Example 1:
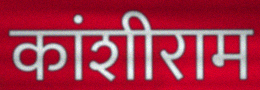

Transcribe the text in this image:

कांशीराम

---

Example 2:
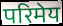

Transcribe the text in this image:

परिमेय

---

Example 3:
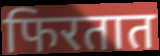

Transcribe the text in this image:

फिरतात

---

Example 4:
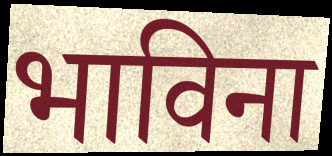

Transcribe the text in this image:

भाविना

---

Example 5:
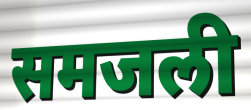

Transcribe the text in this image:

समजली